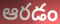
ఆరడం